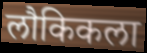
लौकिकला